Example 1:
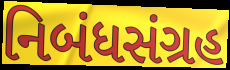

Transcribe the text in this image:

નિબંધસંગ્રહ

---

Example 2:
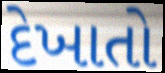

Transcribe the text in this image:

દેખાતો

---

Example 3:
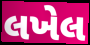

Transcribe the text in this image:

લખેલ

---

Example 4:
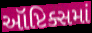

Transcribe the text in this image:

ઑપ્ટિક્સમાં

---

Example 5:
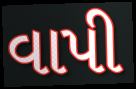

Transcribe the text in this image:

વાપી